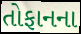
તોફાનના